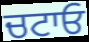
ਚਟਾਓ